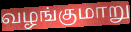
வழங்குமாறு